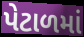
પેટાળમાં